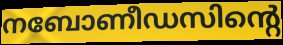
നബോണീഡസിന്റെ